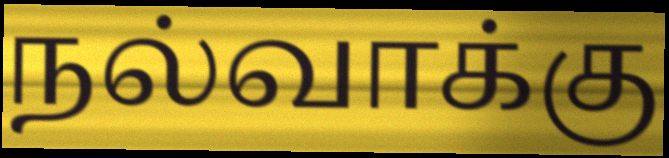
நல்வாக்கு